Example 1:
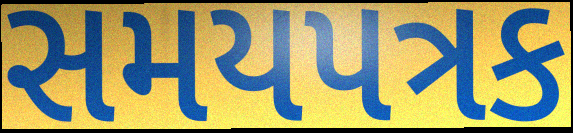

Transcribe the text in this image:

સમયપત્રક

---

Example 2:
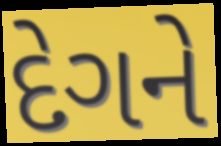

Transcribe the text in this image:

દેગને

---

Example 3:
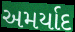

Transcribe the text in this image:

અમર્યાદ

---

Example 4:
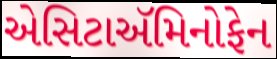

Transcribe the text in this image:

એસિટાઍમિનોફેન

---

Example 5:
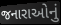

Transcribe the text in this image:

જનારાઓનું